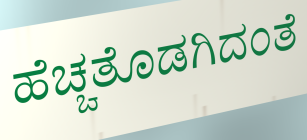
ಹೆಚ್ಚತೊಡಗಿದಂತೆ